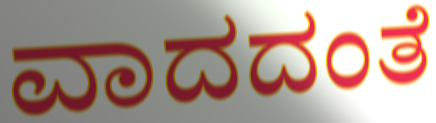
ವಾದದಂತೆ